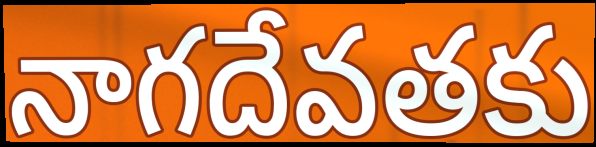
నాగదేవతకు